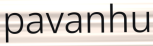
pavanhu